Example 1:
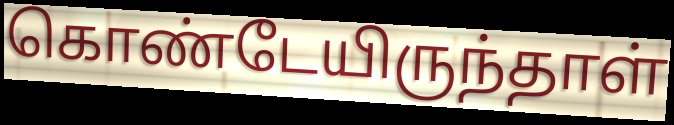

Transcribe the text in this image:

கொண்டேயிருந்தாள்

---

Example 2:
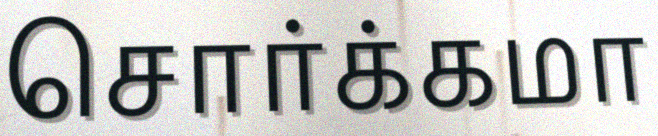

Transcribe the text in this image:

சொர்க்கமா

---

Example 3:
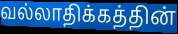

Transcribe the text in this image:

வல்லாதிக்கத்தின்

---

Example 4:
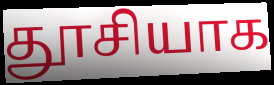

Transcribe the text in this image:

தூசியாக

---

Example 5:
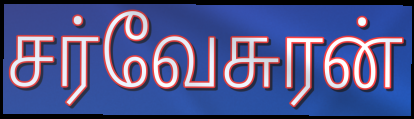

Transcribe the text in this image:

சர்வேசுரன்